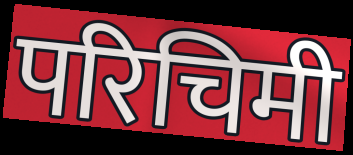
परिचिमी